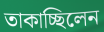
তাকাচ্ছিলেন